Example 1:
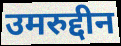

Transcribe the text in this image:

उमरुद्दीन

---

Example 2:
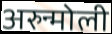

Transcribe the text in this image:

अरुन्मोली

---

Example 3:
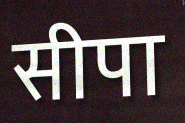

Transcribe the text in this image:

सीपा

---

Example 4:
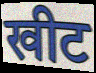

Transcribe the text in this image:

खीट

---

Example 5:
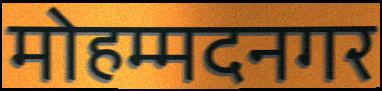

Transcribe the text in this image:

मोहम्मदनगर